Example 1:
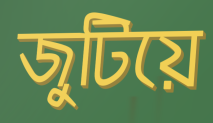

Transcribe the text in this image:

জুটিয়ে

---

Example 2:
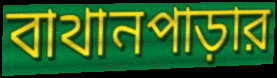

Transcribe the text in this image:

বাথানপাড়ার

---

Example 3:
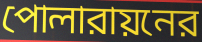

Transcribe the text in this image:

পোলারায়নের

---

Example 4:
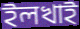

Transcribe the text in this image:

ইলখাই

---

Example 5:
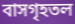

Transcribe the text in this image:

বাসগৃহতল